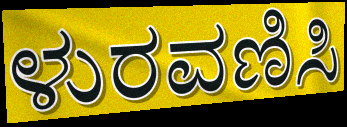
ಳುರವಣಿಸಿ